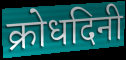
क्रोधदिनी